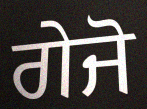
ਗੇਜੋ